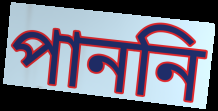
পাননি